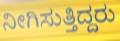
ನೀಗಿಸುತ್ತಿದ್ದರು